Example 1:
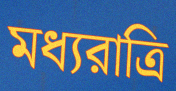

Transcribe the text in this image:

মধ্যরাত্রি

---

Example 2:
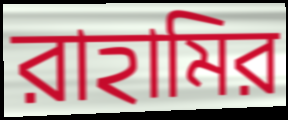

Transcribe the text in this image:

রাহামির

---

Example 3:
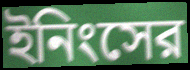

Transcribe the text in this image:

ইনিংসের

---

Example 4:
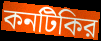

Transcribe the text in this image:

কনটিকির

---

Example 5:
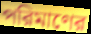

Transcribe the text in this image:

পরিমাণের